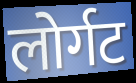
लोर्गट